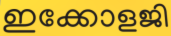
ഇക്കോളജി